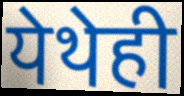
येथेही